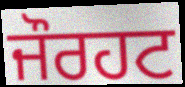
ਜੌਰਹਟ